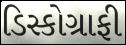
ડિસ્કોગ્રાફી